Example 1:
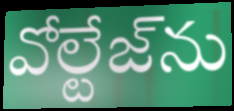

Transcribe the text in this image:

వోల్టేజ్‌ను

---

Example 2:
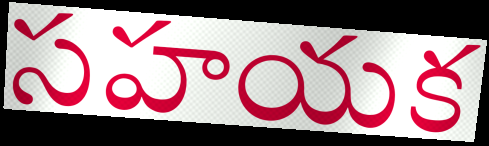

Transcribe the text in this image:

సహయక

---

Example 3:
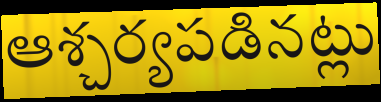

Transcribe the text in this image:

ఆశ్చర్యపడినట్లు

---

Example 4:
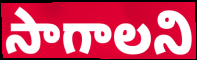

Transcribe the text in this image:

సాగాలని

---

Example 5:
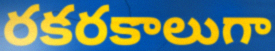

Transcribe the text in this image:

రకరకాలుగా